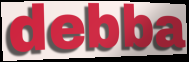
debba